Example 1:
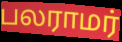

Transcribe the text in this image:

பலராமர்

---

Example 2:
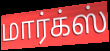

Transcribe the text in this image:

மார்க்ஸ்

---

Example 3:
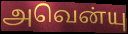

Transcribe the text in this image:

அவென்யு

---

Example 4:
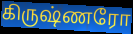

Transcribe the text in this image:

கிருஷ்ணரோ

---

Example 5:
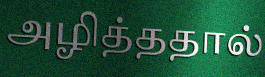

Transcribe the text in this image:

அழித்ததால்